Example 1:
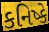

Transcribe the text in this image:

કનિષ્કે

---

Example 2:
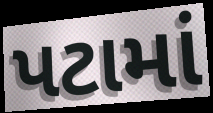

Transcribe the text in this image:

પટામાં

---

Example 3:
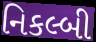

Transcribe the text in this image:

નિકલ્બી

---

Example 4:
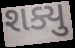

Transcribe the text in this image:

શક્યુ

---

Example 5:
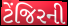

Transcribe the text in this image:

ટેંજિરની